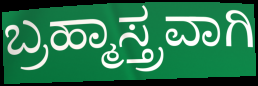
ಬ್ರಹ್ಮಾಸ್ತ್ರವಾಗಿ